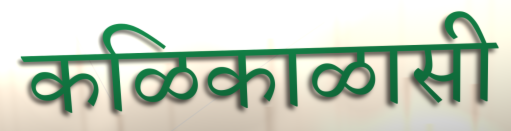
कळिकाळासी